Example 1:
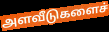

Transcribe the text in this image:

அளவீடுகளைச்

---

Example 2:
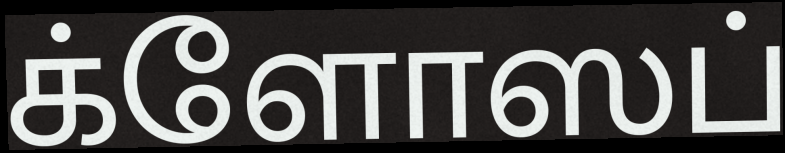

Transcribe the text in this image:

க்ளோஸப்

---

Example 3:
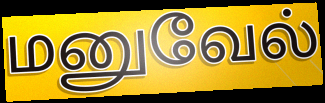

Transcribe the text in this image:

மனுவேல்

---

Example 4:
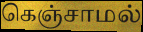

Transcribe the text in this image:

கெஞ்சாமல்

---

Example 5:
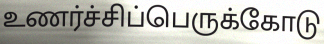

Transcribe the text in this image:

உணர்ச்சிப்பெருக்கோடு